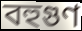
বহুগুণ